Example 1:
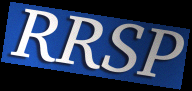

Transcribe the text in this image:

RRSP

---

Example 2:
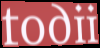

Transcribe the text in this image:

todii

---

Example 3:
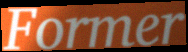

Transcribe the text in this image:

Former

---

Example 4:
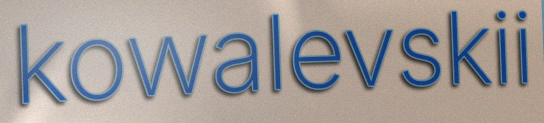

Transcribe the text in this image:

kowalevskii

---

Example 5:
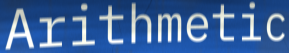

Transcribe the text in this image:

Arithmetic